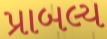
પ્રાબલ્ય